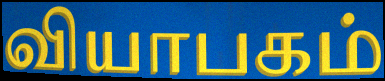
வியாபகம்